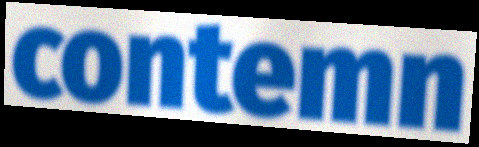
contemn